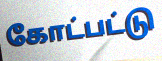
கோட்பட்டு